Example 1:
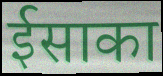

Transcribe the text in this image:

ईसाका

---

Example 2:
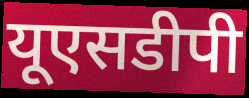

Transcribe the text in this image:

यूएसडीपी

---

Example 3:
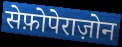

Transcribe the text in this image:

सेफ़ोपेराज़ोन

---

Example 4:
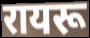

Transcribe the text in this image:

रायरू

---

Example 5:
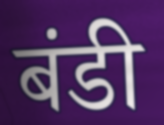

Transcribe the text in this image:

बंडी